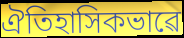
ঐতিহাসিকভাৱে